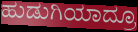
ಹುಡುಗಿಯಾದ್ರೂ